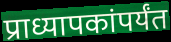
प्राध्यापकांपर्यंत